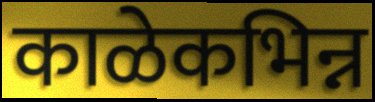
काळेकभिन्न